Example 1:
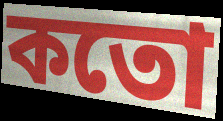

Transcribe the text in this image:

কতো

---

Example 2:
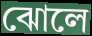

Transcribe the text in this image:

ঝোলে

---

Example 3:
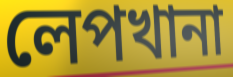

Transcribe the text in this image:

লেপখানা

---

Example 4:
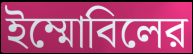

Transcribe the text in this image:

ইম্মোবিলের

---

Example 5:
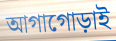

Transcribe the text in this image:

আগাগোড়াই